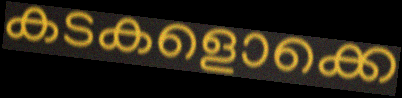
കടകളൊക്കെ